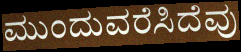
ಮುಂದುವರೆಸಿದೆವು